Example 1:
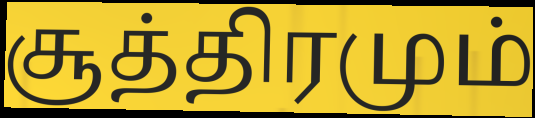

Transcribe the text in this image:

சூத்திரமும்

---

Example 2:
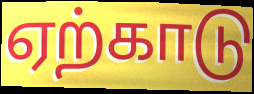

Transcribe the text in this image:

ஏற்காடு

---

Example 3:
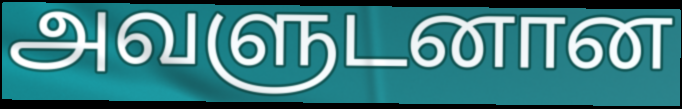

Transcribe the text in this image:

அவளுடனான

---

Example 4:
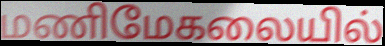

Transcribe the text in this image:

மணிமேகலையில்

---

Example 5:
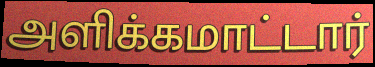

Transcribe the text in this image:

அளிக்கமாட்டார்